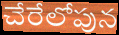
చేరేలోపున